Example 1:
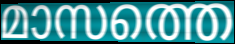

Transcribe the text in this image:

മാസത്തെ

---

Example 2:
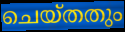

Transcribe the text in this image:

ചെയ്തതും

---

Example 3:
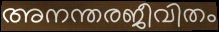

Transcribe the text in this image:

അനന്തരജീവിതം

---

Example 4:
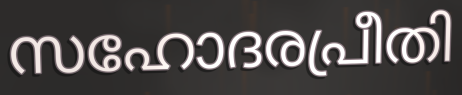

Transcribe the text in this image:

സഹോദരപ്രീതി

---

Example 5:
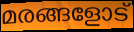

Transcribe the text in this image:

മരങ്ങളോട്